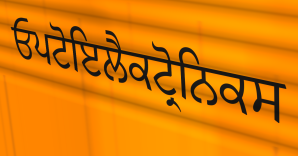
ਓਪਟੋਇਲੈਕਟ੍ਰੋਨਿਕਸ